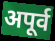
अपूर्व